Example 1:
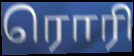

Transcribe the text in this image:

ரொரி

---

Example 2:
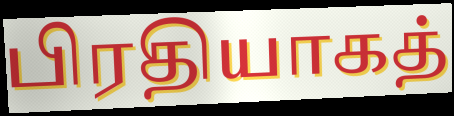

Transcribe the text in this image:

பிரதியாகத்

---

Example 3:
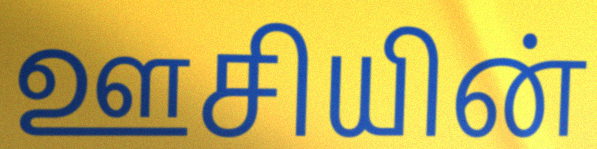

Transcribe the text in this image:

ஊசியின்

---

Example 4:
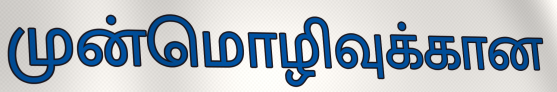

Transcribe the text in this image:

முன்மொழிவுக்கான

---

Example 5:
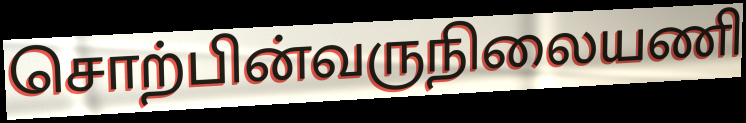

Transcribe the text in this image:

சொற்பின்வருநிலையணி